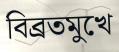
বিব্রতমুখে